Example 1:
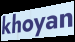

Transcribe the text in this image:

khoyan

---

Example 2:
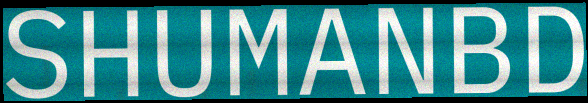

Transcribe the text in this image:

SHUMANBD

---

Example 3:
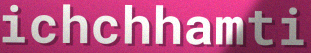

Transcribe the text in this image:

ichchhamti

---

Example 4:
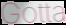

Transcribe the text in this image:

Gotta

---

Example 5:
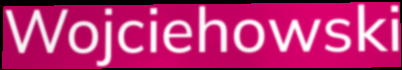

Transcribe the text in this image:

Wojciehowski